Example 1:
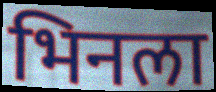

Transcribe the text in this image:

भिनला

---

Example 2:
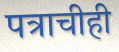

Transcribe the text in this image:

पत्राचीही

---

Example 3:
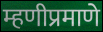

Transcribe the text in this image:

म्हणीप्रमाणे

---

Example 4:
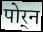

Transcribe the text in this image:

पोर्न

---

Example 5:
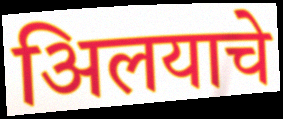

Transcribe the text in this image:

अिलयाचे